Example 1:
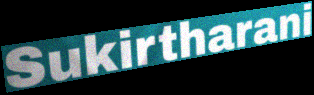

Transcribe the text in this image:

Sukirtharani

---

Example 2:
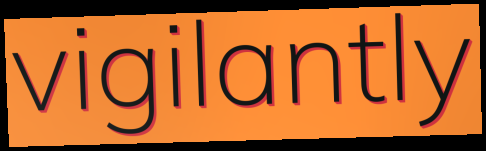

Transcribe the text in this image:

vigilantly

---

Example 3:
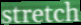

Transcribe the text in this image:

stretch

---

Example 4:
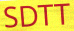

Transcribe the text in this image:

SDTT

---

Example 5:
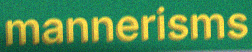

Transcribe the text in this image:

mannerisms